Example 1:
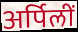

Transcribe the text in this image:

अर्पिलीं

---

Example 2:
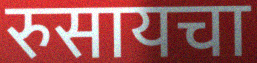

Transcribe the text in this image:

रुसायचा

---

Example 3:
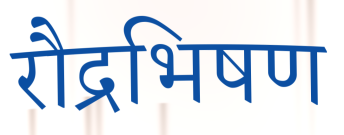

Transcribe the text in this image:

रौद्रभिषण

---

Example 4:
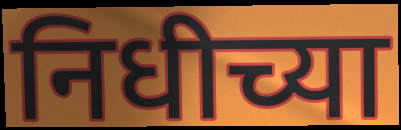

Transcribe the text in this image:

निधीच्या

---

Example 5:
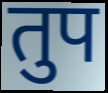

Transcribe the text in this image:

तुप